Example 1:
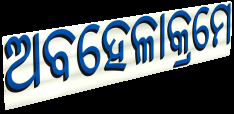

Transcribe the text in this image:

ଅବହେଳାକ୍ରମେ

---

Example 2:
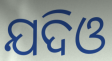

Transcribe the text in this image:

ଯଦିଓ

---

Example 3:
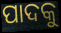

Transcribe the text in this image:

ପାଦକୁ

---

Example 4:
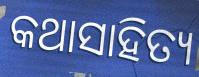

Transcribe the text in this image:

କଥାସାହିତ୍ୟ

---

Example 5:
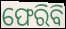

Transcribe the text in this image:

ଫେରିବି